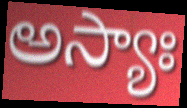
అస్యాః